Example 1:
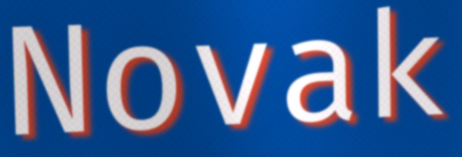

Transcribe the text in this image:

Novak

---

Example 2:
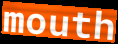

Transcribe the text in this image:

mouth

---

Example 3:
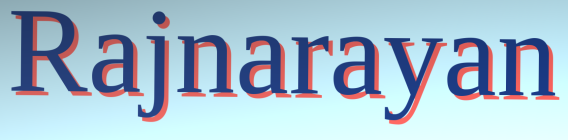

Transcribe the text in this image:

Rajnarayan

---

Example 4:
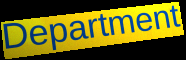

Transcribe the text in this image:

Department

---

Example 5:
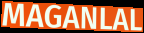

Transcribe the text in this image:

MAGANLAL